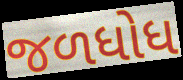
જળધોધ